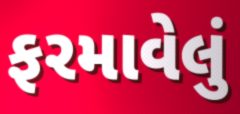
ફરમાવેલું